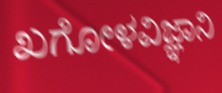
ಖಗೋಳವಿಜ್ಞಾನಿ